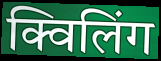
क्विलिंग